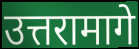
उत्तरामागे